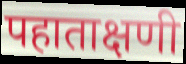
पहाताक्षणी